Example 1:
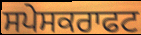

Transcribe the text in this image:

ਸਪੇਸਕਰਾਫਟ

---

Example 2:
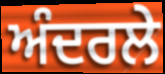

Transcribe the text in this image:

ਅੰਦਰਲੇ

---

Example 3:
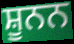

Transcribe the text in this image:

ਸ਼ੂਨਨ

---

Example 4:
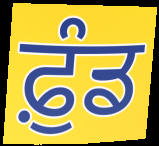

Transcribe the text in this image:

ਫ਼ੁੰਡ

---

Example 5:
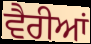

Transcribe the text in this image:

ਵੈਰੀਆਂ